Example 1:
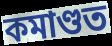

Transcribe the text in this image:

কমাণ্ডত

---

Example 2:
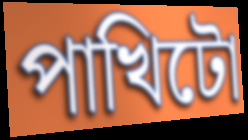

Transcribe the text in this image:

পাখিটো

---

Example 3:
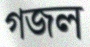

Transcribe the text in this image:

গজল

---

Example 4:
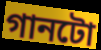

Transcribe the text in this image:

গানটো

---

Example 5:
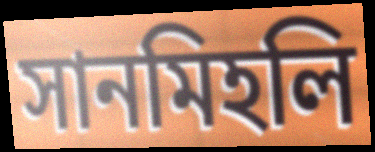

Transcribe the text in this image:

সানমিহলি